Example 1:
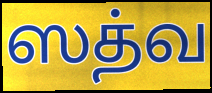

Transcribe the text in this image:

ஸத்வ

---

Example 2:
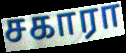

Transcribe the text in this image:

சகாரா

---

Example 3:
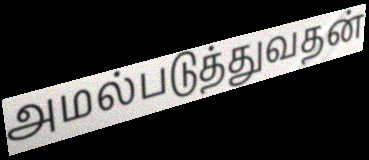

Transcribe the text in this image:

அமல்படுத்துவதன்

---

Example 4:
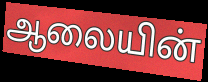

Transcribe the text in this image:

ஆலையின்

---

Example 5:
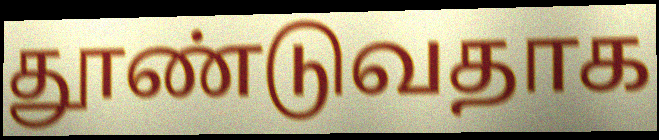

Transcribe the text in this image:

தூண்டுவதாக